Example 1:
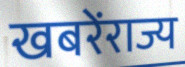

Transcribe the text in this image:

खबरेंराज्य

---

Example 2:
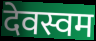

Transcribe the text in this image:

देवस्वम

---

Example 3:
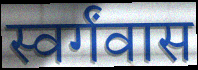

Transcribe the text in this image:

स्वर्गंवास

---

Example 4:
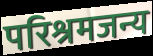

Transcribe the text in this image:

परिश्रमजन्य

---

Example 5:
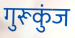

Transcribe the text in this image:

गुरूकुंज